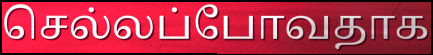
செல்லப்போவதாக